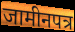
जामीनपत्र